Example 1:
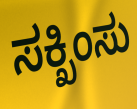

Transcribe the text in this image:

ಸಕ್ಖಿಂಸು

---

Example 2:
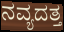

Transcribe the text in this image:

ನವ್ಯದತ್ತ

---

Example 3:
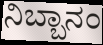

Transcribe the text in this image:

ನಿಬ್ಬಾನಂ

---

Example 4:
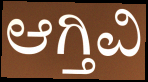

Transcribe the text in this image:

ಆಗ್ತಿವಿ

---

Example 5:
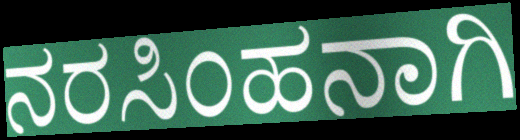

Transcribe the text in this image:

ನರಸಿಂಹನಾಗಿ